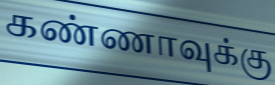
கண்ணாவுக்கு